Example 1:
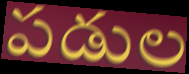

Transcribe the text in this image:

పడుల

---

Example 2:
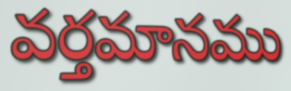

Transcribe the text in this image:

వర్తమానము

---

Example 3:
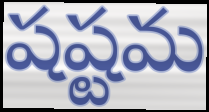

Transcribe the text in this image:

షష్టమ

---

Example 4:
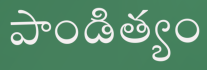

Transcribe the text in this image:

పాండిత్యం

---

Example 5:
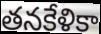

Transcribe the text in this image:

తనకేళికా